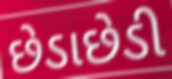
છેડાછેડી